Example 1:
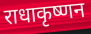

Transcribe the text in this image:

राधाकृष्णन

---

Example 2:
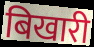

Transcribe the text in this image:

बिखारी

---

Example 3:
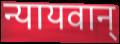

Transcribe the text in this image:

न्यायवान्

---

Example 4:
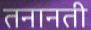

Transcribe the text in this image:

तनानती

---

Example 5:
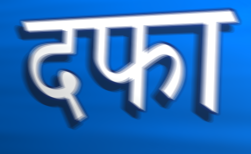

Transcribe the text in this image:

दफा